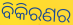
ବିକିରଣର